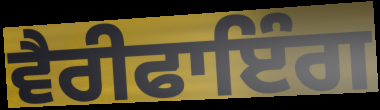
ਵੈਰੀਫਾਇੰਗ